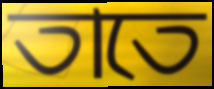
তাতে